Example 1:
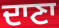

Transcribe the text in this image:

ਦਾਣਾ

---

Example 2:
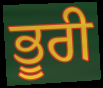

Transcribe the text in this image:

ਭੂਰੀ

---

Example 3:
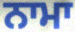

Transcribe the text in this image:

ਨਾਮਾ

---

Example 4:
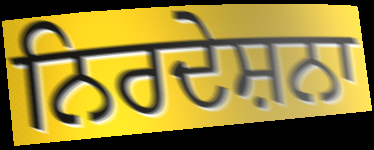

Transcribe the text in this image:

ਨਿਰਦੇਸ਼ਨਾ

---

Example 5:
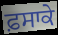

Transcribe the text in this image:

ਫ਼ਸਾਕੇ